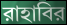
রাহাবির